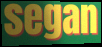
segan